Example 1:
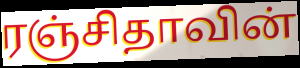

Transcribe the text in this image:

ரஞ்சிதாவின்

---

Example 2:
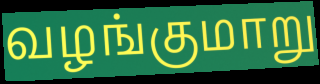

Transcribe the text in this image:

வழங்குமாறு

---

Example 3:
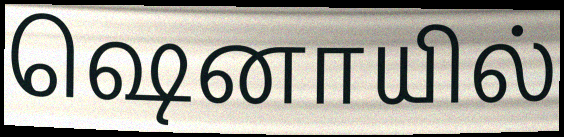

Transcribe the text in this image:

ஷெனாயில்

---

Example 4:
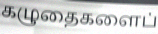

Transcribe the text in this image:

கழுதைகளைப்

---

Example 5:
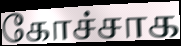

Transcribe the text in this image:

கோச்சாக